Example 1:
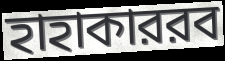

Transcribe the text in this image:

হাহাকাররব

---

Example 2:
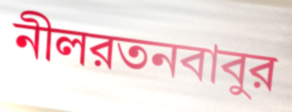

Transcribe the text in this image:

নীলরতনবাবুর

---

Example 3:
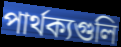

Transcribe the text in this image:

পার্থক্যগুলি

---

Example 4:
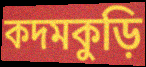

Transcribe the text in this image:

কদমকুড়ি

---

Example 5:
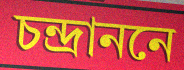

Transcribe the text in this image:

চন্দ্রাননে